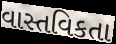
વાસ્તવિકતા